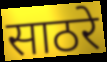
साठरे